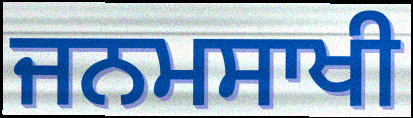
ਜਨਮਸਾਖੀ